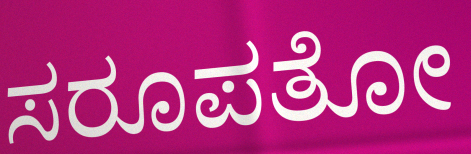
ಸರೂಪತೋ